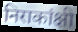
निराकांक्षी